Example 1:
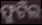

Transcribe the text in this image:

ଫୁଟିଲ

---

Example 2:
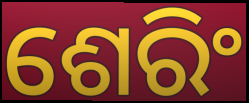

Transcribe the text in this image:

ଶେରିଂ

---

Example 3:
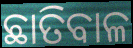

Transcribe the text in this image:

ଛାତିବାଳ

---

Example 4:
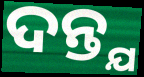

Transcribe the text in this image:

ଦନ୍ତ୍ଯ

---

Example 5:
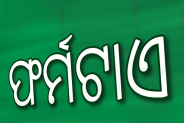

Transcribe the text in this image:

ଫର୍ମଟାଏ